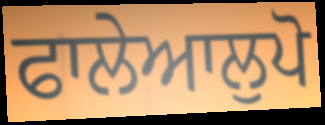
ਫਾਲੇਆਲੁਪੋ